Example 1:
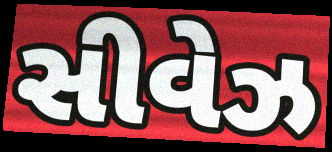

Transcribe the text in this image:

સીવેઝ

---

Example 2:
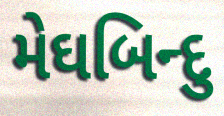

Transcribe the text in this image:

મેઘબિન્દુ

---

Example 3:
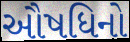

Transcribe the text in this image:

ઔષધિનો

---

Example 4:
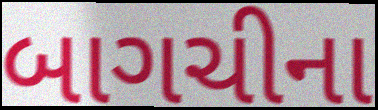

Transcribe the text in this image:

બાગચીના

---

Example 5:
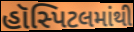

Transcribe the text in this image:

હૉસ્પિટલમાંથી